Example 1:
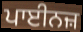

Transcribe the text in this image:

ਪਾਈਨਜ਼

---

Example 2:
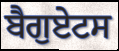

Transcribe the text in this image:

ਬੈਗੁਏਟਸ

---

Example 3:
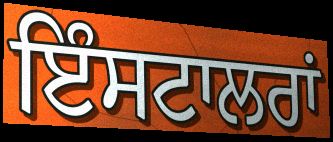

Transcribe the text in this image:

ਇੰਸਟਾਲਰਾਂ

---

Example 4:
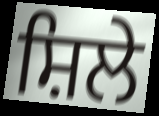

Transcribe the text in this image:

ਸ਼ਿਲੇ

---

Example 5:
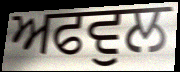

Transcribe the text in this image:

ਅਫਵੁਲ